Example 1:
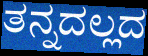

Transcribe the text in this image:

ತನ್ನದಲ್ಲದ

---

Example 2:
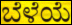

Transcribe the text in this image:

ಬೆಳೆಯೆ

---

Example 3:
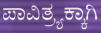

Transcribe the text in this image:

ಪಾವಿತ್ರ್ಯಕ್ಕಾಗಿ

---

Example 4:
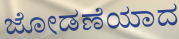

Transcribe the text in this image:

ಜೋಡಣೆಯಾದ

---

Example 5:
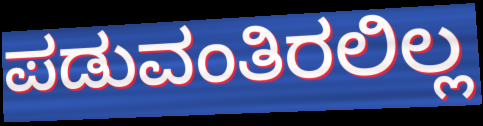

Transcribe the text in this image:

ಪಡುವಂತಿರಲಿಲ್ಲ